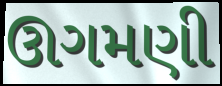
ઊગમણી